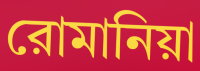
রোমানিয়া